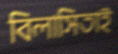
বিলাসিতাই